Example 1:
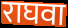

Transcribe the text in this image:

राघवा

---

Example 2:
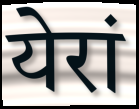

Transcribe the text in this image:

येरां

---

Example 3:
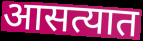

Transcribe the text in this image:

आसत्यात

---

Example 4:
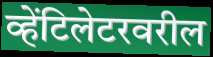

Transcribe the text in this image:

व्हेंटिलेटरवरील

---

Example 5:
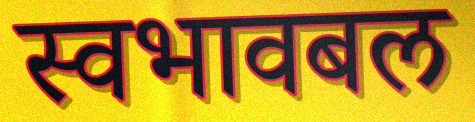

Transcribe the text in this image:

स्वभावबल